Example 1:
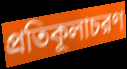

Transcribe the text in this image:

প্রতিকূলাচরণ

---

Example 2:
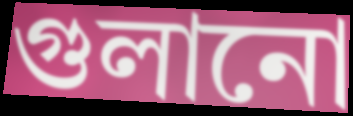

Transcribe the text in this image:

গুলানো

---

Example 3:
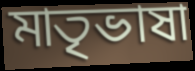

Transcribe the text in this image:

মাতৃভাষা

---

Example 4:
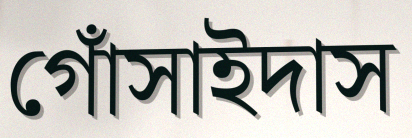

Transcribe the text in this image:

গোঁসাইদাস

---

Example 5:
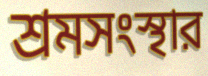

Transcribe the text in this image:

শ্রমসংস্থার